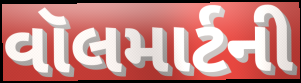
વૉલમાર્ટની